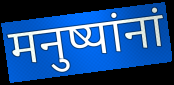
मनुष्यांनां